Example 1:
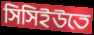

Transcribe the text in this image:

সিসিইউতে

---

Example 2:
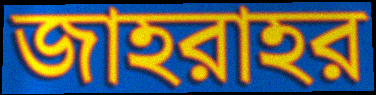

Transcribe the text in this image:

জাহরাহর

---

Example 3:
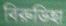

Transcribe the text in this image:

বিরুডিহা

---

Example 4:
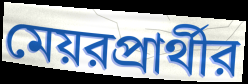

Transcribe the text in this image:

মেয়রপ্রার্থীর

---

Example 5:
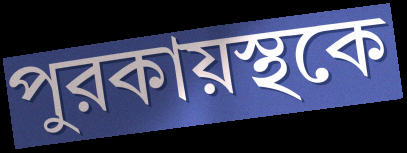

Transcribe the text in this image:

পুরকায়স্থকে